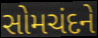
સોમચંદને